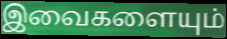
இவைகளையும்